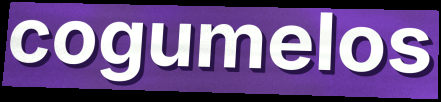
cogumelos